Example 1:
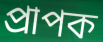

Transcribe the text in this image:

প্ৰাপক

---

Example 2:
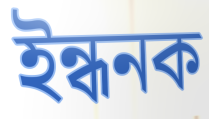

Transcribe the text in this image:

ইন্ধনক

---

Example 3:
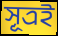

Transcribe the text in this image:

সূত্ৰই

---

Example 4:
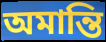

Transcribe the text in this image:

অমান্তি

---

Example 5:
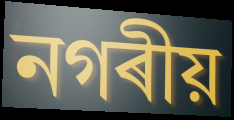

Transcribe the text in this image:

নগৰীয়